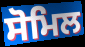
ਸੋਮਿਲ